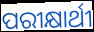
ପରୀକ୍ଷାର୍ଥୀ